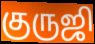
குருஜி